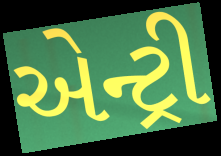
એન્ટ્રી